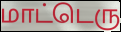
மாட்டெரு